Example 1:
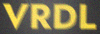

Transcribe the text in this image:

VRDL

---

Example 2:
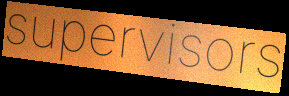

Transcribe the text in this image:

supervisors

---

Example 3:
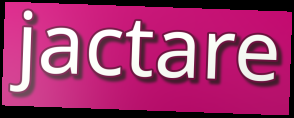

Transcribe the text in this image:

jactare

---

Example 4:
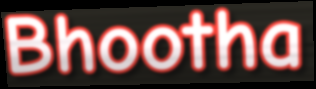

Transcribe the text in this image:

Bhootha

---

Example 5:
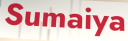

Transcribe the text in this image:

Sumaiya